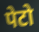
पेटो